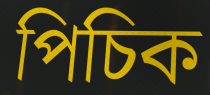
পিচিক